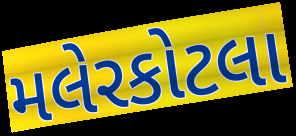
મલેરકોટલા